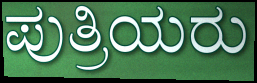
ಪುತ್ರಿಯರು